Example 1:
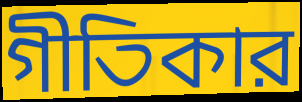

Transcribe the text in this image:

গীতিকার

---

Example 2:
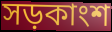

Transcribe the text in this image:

সড়কাংশ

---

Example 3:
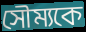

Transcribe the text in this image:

সৌম্যকে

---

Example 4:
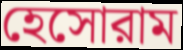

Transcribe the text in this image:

হেসোরাম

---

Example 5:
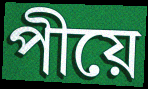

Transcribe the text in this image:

পীয়ে